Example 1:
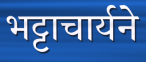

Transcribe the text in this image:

भट्टाचार्यने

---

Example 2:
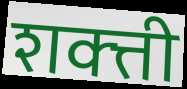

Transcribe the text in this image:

शक्त्ती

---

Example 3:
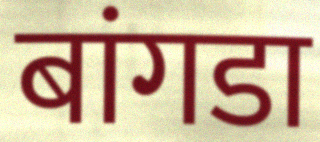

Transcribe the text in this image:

बांगडा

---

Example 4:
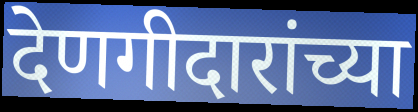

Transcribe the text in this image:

देणगीदारांच्या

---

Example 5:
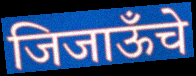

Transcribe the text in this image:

जिजाऊँचे